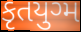
કૃતયુગ્મ